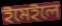
ইমেইলে